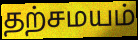
தற்சமயம்